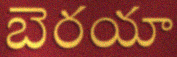
బెరయా